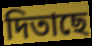
দিতাছে